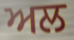
ਅਲ